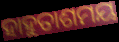
ହାହୁତାଶମୟ